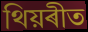
থিয়ৰীত